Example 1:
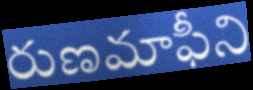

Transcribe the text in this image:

రుణమాఫీని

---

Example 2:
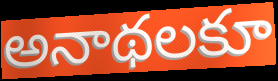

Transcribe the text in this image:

అనాథలకూ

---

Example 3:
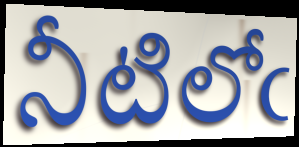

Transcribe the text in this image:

నీటిలోఁ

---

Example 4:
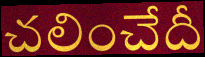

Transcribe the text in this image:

చలించేదీ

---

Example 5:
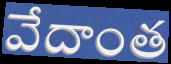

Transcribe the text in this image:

వేదాంత